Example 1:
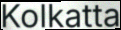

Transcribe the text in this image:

Kolkatta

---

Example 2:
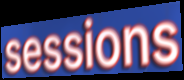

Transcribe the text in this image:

sessions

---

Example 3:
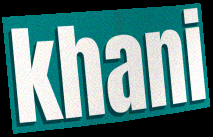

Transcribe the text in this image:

khani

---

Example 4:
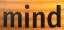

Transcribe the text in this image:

mind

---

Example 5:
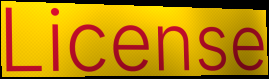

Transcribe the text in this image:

License